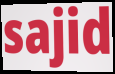
sajid